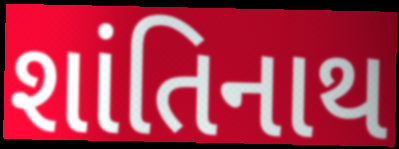
શાંતિનાથ